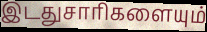
இடதுசாரிகளையும்